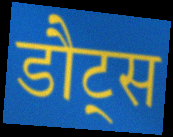
डौट्स